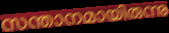
സന്താനമായിരുന്നു